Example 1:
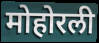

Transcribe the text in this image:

मोहोरली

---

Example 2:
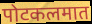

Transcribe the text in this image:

पोटकलमात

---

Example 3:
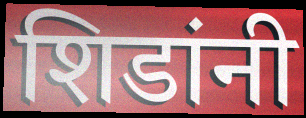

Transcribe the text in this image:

शिडांनी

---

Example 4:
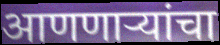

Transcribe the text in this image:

आणणाऱ्यांचा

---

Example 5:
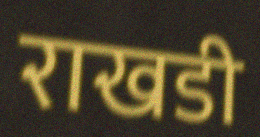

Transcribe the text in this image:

राखडी